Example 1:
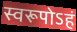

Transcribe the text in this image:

स्वरूपोऽहं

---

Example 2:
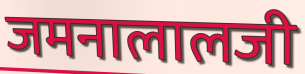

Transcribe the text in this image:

जमनालालजी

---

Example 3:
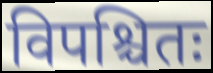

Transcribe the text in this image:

विपश्चितः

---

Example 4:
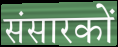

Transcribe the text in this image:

संसारकों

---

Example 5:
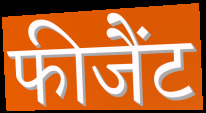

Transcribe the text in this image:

फीजैंट